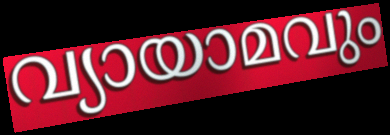
വ്യായാമവും